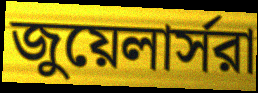
জুয়েলার্সরা